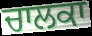
ਚਾਲਕਾ